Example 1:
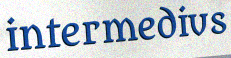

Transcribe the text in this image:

intermedius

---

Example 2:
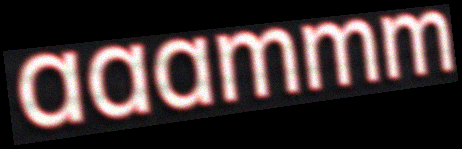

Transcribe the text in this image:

aaammm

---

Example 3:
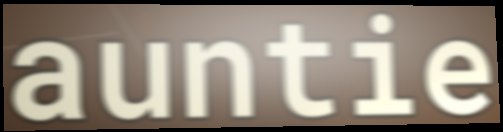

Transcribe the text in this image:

auntie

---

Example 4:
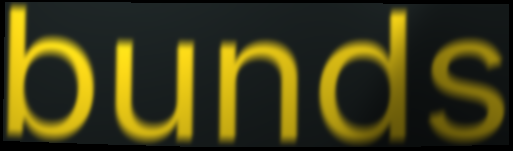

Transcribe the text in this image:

bunds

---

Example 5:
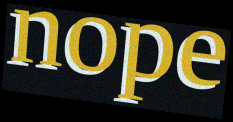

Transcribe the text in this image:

nope